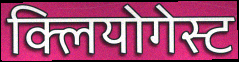
क्लियोगेस्ट